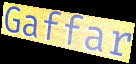
Gaffar